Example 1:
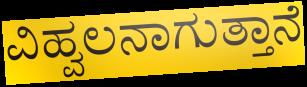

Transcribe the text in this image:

ವಿಹ್ವಲನಾಗುತ್ತಾನೆ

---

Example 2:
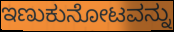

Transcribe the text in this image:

ಇಣುಕುನೋಟವನ್ನು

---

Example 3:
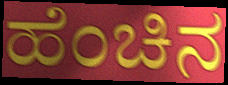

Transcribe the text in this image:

ಹೆಂಚಿನ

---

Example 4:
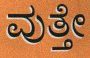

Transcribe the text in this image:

ವುತ್ತೇ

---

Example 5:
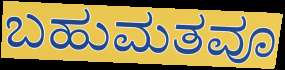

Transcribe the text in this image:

ಬಹುಮತವೂ